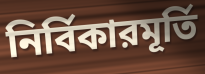
নির্বিকারমূর্তি